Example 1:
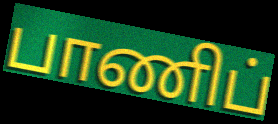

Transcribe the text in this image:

பாணிப்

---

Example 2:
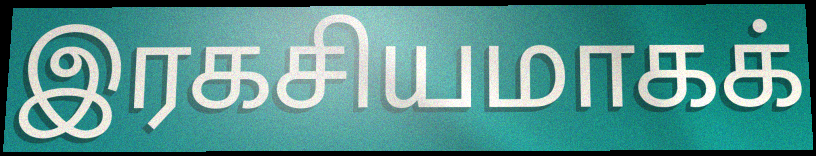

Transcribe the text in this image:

இரகசியமாகக்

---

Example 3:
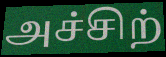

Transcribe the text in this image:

அச்சிற்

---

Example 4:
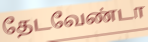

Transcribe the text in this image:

தேடவேண்டா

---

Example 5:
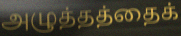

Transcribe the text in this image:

அழுத்தத்தைக்